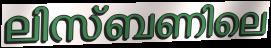
ലിസ്ബണിലെ